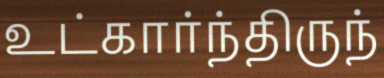
உட்கார்ந்திருந்